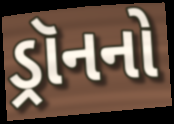
ડ્રૉનનો